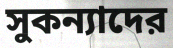
সুকন্যাদের